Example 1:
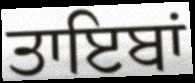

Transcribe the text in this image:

ਤਾਇਬਾਂ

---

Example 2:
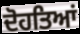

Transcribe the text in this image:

ਦੋਹਤਿਆਂ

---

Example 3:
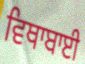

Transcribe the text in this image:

ਵਿਥਾਬਾਈ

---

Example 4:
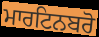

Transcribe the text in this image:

ਮਾਰਟਿਨਬਰੋ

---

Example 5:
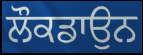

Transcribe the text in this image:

ਲੌਕਡਾਉਨ